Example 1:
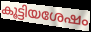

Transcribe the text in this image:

കൂട്ടിയശേഷം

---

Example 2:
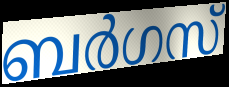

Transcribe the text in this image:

ബർഗസ്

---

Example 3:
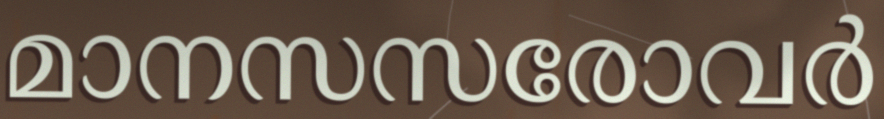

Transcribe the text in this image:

മാനസസരോവർ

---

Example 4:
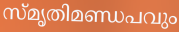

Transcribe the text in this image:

സ്മൃതിമണ്ഡപവും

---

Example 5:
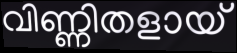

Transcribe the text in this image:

വിണ്ണിതളായ്